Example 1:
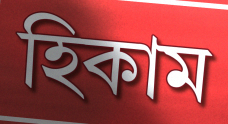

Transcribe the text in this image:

হিকাম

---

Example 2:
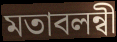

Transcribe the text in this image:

মতাবলন্বী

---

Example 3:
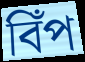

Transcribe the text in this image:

বিঁপ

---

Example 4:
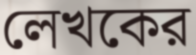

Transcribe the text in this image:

লেখকের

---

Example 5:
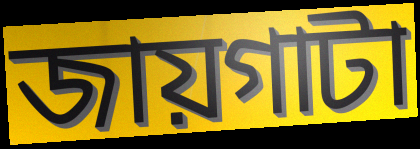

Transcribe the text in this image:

জায়গাটা